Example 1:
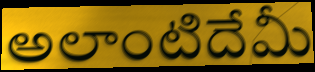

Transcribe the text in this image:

అలాంటిదేమీ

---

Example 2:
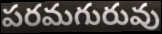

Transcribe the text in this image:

పరమగురువు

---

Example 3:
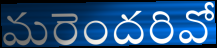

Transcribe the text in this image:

మరెందరివో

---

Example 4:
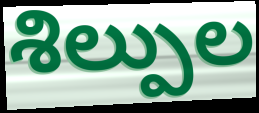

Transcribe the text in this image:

శిల్పుల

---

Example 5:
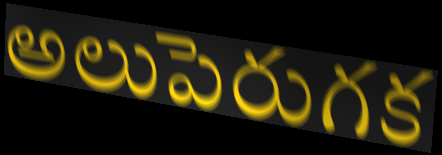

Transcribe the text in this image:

అలుపెరుగక